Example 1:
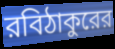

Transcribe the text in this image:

রবিঠাকুরের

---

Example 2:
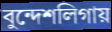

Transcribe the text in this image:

বুন্দেশলিগায়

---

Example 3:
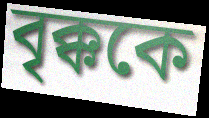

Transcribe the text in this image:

বৃক্ককে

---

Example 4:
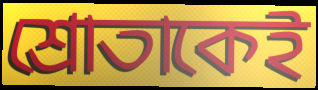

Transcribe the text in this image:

শ্রোতাকেই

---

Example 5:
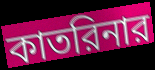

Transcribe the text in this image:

কাতরিনার